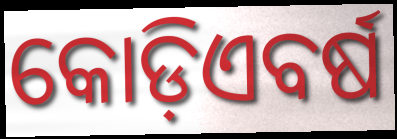
କୋଡ଼ିଏବର୍ଷ